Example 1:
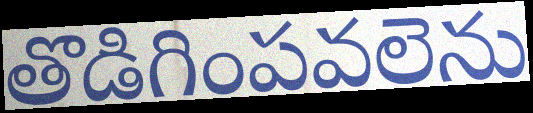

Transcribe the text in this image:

తొడిగింపవలెను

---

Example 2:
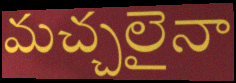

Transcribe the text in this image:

మచ్చలైనా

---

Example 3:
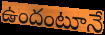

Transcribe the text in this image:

ఉందంటూనే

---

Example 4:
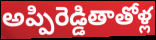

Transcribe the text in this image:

అప్పిరెడ్డితాతోళ్ల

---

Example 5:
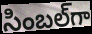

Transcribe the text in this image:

సింబల్‌గా